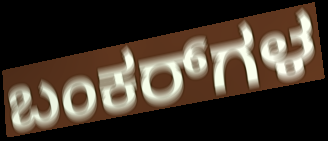
ಬಂಕರ್‌ಗಳ